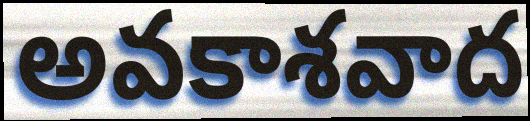
అవకాశవాద